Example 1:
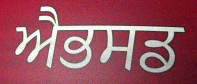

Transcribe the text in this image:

ਐਭਸਡ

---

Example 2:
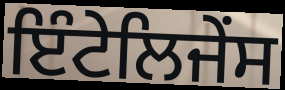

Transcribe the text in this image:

ਇੰਟੇਲਿਜੇਂਸ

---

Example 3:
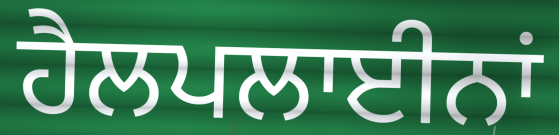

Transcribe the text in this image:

ਹੈਲਪਲਾਈਨਾਂ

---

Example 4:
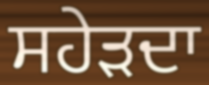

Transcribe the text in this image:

ਸਹੇੜਦਾ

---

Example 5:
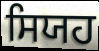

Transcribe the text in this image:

ਸਿਯਹ